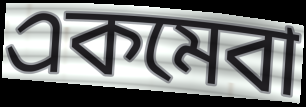
একমেবা